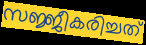
സജ്ജീകരിച്ചത്